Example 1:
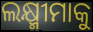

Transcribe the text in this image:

ଲକ୍ଷ୍ମୀମାକୁ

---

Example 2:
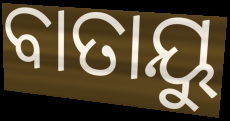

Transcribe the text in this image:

ବାତାୟୁ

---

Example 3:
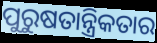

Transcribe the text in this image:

ପୁରୁଷତାନ୍ତ୍ରିକତାର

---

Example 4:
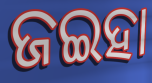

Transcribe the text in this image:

ଜଇହା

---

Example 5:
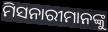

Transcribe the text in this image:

ମିସନାରୀମାନଙ୍କୁ